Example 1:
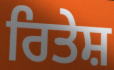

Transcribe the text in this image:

ਰਿਤੇਸ਼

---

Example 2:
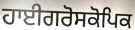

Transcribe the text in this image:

ਹਾਈਗਰੋਸਕੋਪਿਕ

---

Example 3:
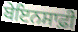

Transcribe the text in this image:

ਬੇਇਨਸਾਫ਼ੀ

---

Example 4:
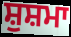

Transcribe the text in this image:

ਸ਼ੁਸ਼ਮਾ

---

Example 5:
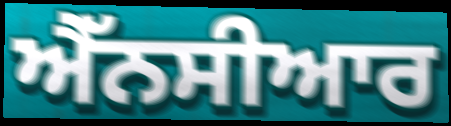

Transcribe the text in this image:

ਐੱਨਸੀਆਰ